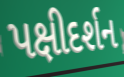
પક્ષીદર્શન